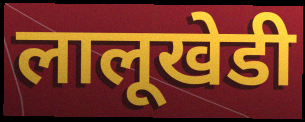
लालूखेडी